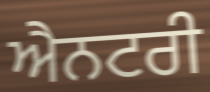
ਐਨਟਰੀ